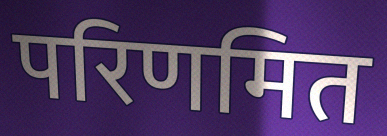
परिणमित